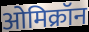
ओमिक्रॉन